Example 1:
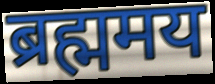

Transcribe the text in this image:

ब्रह्ममय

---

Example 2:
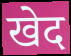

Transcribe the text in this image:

खेद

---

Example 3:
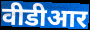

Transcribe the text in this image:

वीडीआर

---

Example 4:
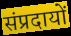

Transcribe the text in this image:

संप्रदायों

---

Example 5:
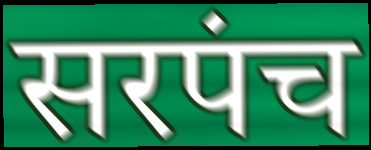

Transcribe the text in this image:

सरपंच